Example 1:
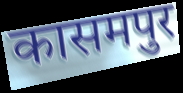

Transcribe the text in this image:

कासमपुर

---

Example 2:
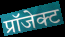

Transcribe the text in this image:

प्रॉजेक्‍ट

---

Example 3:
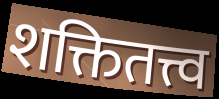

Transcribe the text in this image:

शक्तितत्त्व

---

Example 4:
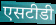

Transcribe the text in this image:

एसटीडी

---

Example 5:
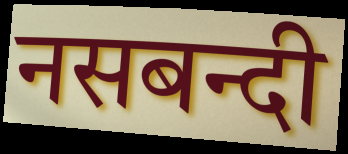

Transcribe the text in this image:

नसबन्दी